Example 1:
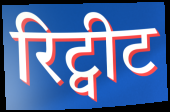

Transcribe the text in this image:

रिट्वीट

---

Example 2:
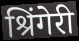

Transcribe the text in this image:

श्रिंगेरी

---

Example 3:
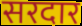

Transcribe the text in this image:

सरदार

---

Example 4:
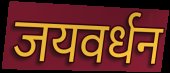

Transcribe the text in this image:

जयवर्धन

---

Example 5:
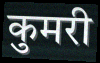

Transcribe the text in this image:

कुमरी